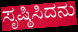
ಸೃಷ್ಠಿಸಿದನು